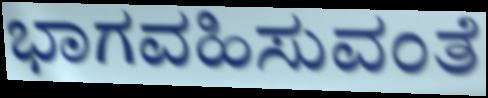
ಭಾಗವಹಿಸುವಂತೆ